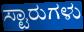
ಸ್ಟಾರುಗಳು